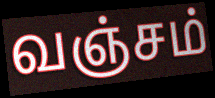
வஞ்சம்